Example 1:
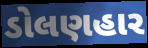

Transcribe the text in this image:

ડોલણહાર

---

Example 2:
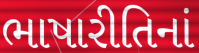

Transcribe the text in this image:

ભાષારીતિનાં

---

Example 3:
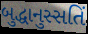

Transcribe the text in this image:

બુદ્ધાનુસ્સતિં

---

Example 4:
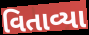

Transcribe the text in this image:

વિતાવ્યા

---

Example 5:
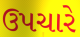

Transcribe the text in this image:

ઉપચારે